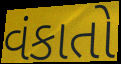
વંકાતો